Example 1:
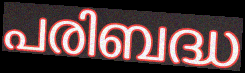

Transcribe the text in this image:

പരിബദ്ധ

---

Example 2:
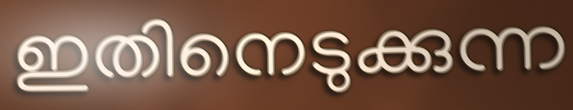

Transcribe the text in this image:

ഇതിനെടുക്കുന്ന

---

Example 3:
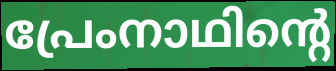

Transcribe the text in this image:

പ്രേംനാഥിന്റെ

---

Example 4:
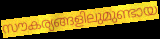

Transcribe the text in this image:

സൗകര്യങ്ങളിലുമുണ്ടായ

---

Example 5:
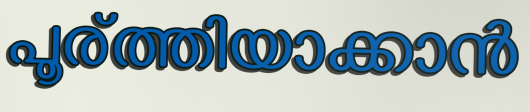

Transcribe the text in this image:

പൂര്ത്തിയാക്കാൻ